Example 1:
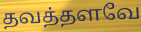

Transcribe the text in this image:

தவத்தளவே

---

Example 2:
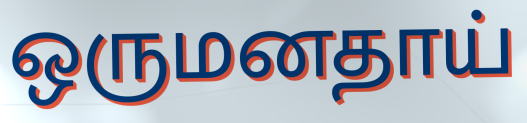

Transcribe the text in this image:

ஒருமனதாய்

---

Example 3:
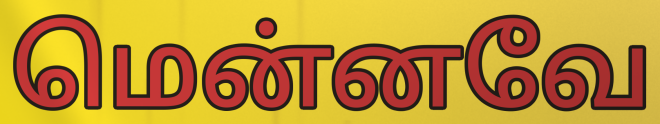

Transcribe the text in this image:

மென்னவே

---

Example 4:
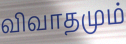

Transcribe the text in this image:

விவாதமும்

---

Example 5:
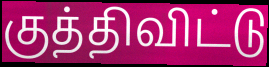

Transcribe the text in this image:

குத்திவிட்டு